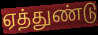
ஏத்துண்டு